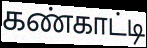
கண்காட்டி